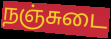
நஞ்சுடை